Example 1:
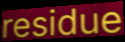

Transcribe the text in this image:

residue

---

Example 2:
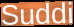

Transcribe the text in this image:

Suddi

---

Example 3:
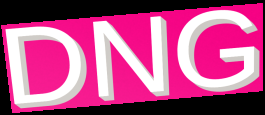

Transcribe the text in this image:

DNG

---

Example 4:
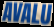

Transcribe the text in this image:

AVALU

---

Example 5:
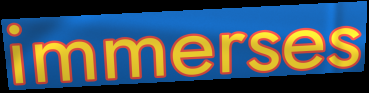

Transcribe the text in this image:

immerses